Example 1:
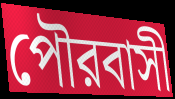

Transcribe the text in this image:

পৌরবাসী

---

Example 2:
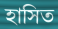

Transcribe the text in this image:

হাসিত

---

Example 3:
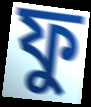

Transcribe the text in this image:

ফু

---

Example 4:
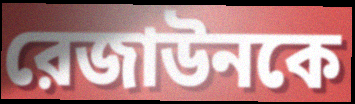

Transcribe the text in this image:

রেজাউনকে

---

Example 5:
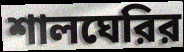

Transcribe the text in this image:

শালঘেরির